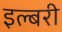
इल्बरी